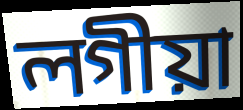
লগীয়া